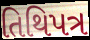
તિથિપત્ર